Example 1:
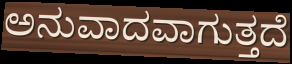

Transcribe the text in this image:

ಅನುವಾದವಾಗುತ್ತದೆ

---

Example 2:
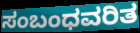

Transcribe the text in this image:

ಸಂಬಂಧವರಿತ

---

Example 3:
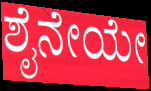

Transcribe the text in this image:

ಶೈನೇಯೇ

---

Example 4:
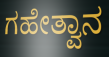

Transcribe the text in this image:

ಗಹೇತ್ವಾನ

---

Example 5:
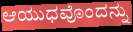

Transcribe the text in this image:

ಆಯುಧವೊಂದನ್ನು